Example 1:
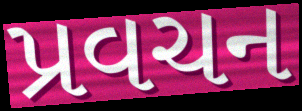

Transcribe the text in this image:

પ્રવચન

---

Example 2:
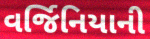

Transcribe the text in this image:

વર્જિનિયાની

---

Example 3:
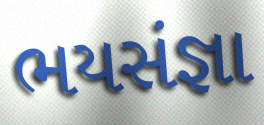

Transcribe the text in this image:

ભયસંજ્ઞા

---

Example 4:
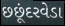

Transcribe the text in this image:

છછૂંદરવેડા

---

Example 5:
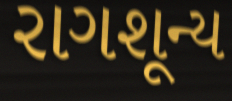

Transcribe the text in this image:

રાગશૂન્ય